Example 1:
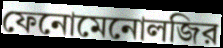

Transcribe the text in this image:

ফেনোমেনোলজির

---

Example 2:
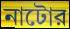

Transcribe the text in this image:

নাটোর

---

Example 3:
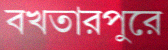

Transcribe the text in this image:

বখতারপুরে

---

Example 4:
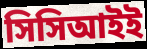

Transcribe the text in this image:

সিসিআইই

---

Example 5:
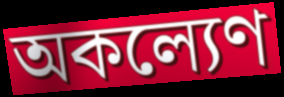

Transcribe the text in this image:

অকল্যেণ